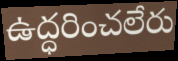
ఉద్ధరించలేరు